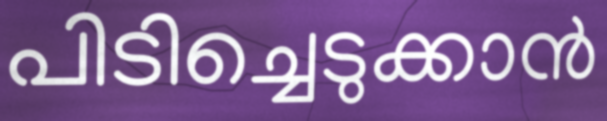
പിടിച്ചെടുക്കാൻ